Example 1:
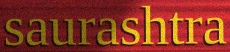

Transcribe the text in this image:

saurashtra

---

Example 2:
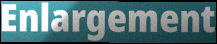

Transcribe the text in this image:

Enlargement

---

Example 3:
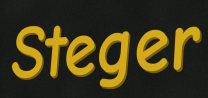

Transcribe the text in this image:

Steger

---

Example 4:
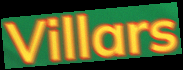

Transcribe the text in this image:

Villars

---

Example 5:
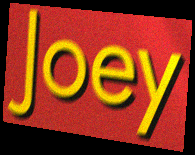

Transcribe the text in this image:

Joey